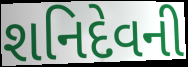
શનિદેવની